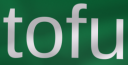
tofu